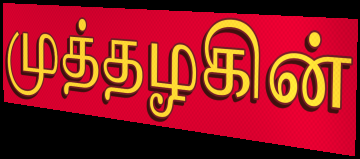
முத்தழகின்